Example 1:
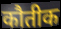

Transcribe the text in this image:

कौतीक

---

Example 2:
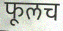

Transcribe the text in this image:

फूलच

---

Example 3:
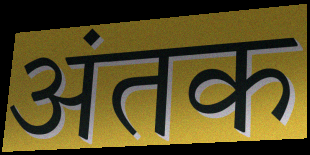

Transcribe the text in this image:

अंतक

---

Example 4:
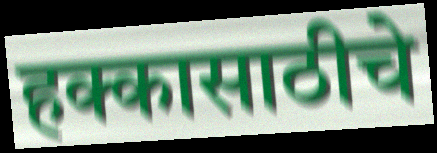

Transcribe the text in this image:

हक्कासाठीचे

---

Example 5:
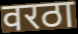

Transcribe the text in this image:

वरठा